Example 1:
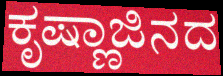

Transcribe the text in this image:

ಕೃಷ್ಣಾಜಿನದ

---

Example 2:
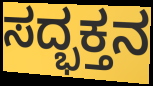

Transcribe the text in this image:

ಸದ್ಭಕ್ತನ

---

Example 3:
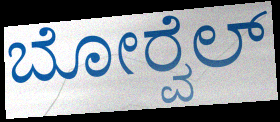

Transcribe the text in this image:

ಬೋರ್‍ವೆಲ್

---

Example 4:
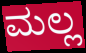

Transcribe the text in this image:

ಮಲ್ಲ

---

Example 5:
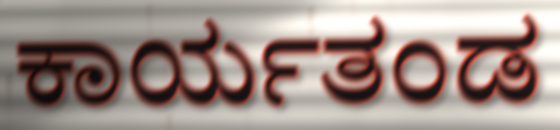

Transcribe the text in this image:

ಕಾರ್ಯತಂಡ